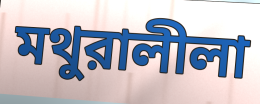
মথুরালীলা